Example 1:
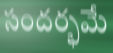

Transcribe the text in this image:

సందర్భమే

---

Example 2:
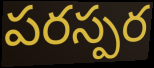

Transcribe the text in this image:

పరస్పర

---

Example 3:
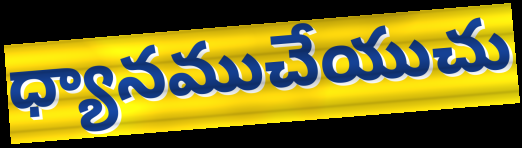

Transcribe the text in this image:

ధ్యానముచేయుచు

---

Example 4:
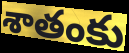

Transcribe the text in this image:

శాతంకు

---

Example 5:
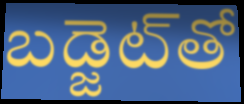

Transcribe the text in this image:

బడ్జెట్‌తో